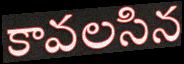
కావలసిన